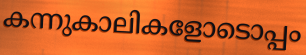
കന്നുകാലികളോടൊപ്പം